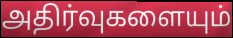
அதிர்வுகளையும்